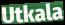
Utkala